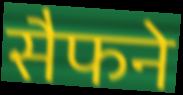
सैफने